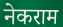
नेकराम